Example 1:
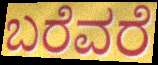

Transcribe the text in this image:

ಬರೆವರೆ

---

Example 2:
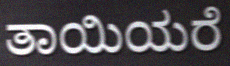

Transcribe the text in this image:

ತಾಯಿಯರೆ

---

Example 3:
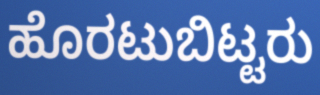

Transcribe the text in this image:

ಹೊರಟುಬಿಟ್ಟರು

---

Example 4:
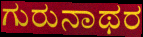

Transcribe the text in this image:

ಗುರುನಾಥರ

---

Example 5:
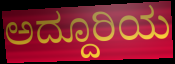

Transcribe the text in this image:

ಅದ್ದೂರಿಯ